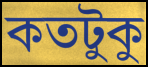
কতটুকু